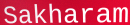
Sakharam